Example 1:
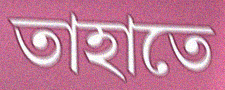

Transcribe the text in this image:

তাহাতে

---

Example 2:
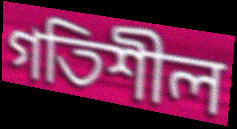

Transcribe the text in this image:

গতিশীল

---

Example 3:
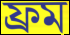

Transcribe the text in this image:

ফ্ৰম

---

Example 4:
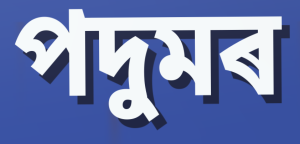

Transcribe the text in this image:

পদুমৰ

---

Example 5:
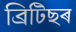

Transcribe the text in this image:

ব্ৰিটিছৰ